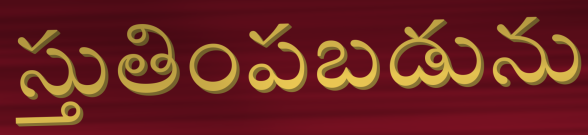
స్తుతింపబడును